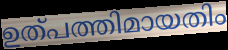
ഉത്പത്തിമായതിം